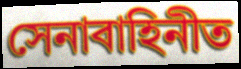
সেনাবাহিনীত